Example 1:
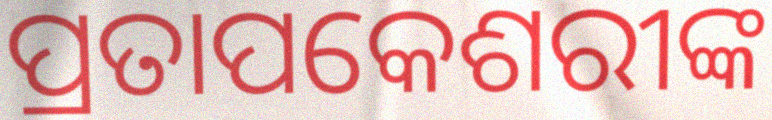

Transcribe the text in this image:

ପ୍ରତାପକେଶରୀଙ୍କ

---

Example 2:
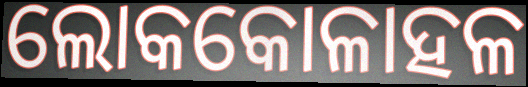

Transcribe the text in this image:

ଲୋକକୋଳାହଳ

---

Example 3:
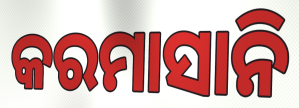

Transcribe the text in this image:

କରମାସାନି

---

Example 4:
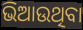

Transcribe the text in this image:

ଭିଆଉଥିବା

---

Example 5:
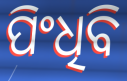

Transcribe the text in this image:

ପିଂଧିବି